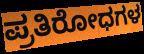
ಪ್ರತಿರೋಧಗಳ